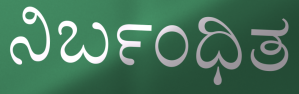
ನಿರ್ಬಂಧಿತ